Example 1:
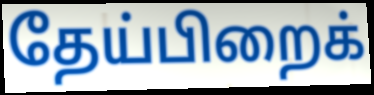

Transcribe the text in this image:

தேய்பிறைக்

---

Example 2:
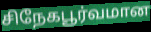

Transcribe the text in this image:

சிநேகபூர்வமான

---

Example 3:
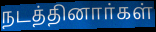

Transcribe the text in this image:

நடத்தினார்கள்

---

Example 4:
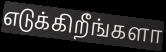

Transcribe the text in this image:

எடுக்கிறீங்களா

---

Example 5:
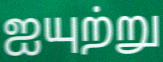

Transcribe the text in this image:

ஐயுற்று